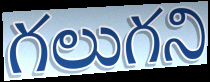
గలుగని